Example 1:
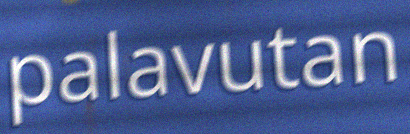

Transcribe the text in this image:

palavutan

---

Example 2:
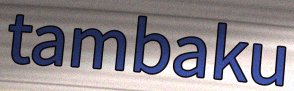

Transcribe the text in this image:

tambaku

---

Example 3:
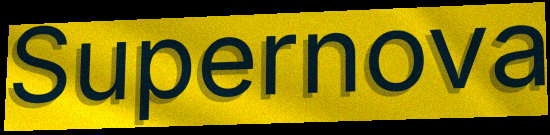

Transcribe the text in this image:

Supernova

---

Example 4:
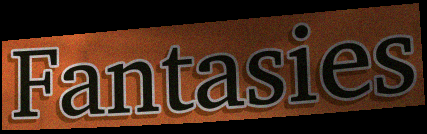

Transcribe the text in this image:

Fantasies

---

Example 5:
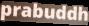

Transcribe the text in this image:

prabuddh